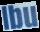
Ibu